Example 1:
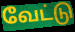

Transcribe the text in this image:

வேட்டு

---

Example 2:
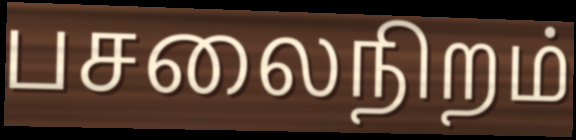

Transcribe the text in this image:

பசலைநிறம்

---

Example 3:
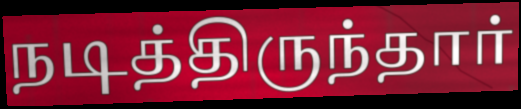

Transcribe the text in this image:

நடித்திருந்தார்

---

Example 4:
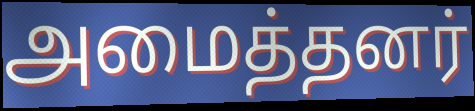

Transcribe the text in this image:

அமைத்தனர்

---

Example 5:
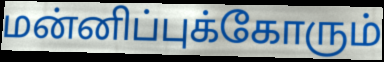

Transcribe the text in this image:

மன்னிப்புக்கோரும்